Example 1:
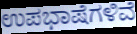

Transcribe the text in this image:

ಉಪಭಾಷೆಗಳಿವೆ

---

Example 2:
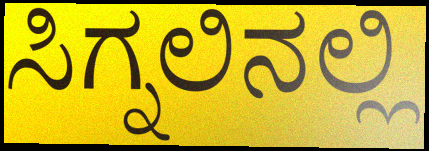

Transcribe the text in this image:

ಸಿಗ್ನಲಿನಲ್ಲಿ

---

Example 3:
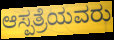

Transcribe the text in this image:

ಆಸ್ಪತ್ರೆಯವರು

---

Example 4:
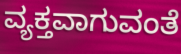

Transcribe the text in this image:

ವ್ಯಕ್ತವಾಗುವಂತೆ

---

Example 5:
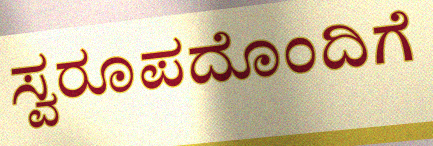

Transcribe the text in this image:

ಸ್ವರೂಪದೊಂದಿಗೆ